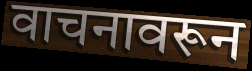
वाचनावरून